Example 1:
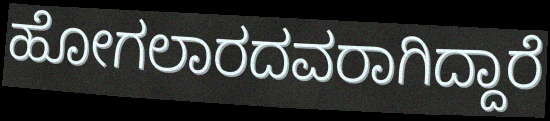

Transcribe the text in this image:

ಹೋಗಲಾರದವರಾಗಿದ್ದಾರೆ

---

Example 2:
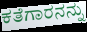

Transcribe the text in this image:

ಕತೆಗಾರನನ್ನು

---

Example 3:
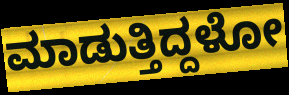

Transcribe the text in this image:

ಮಾಡುತ್ತಿದ್ದಳೋ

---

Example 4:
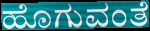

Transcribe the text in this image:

ಹೊಗುವಂತೆ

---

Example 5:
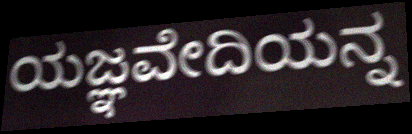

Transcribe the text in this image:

ಯಜ್ಞವೇದಿಯನ್ನ